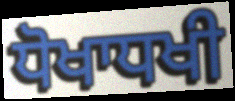
ਧੋਖਾਧਖੀ